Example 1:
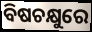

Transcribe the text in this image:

ବିଷଚକ୍ଷୁରେ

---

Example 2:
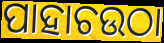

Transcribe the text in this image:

ପାହାଚଉଠା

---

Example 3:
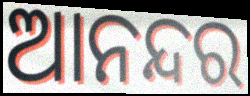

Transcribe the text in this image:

ଆନନ୍ଦର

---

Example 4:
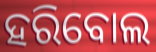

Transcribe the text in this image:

ହରିବୋଲ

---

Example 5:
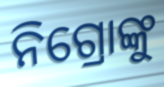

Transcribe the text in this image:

ନିଗ୍ରୋଙ୍କୁ